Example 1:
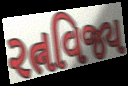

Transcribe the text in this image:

રત્નવિજ્ય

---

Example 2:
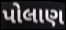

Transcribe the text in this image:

પોલાણ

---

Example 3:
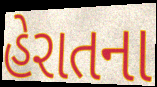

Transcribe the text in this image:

હેરાતના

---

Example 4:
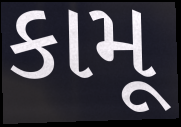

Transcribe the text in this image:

કામૂ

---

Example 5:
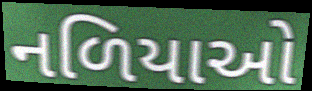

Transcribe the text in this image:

નળિયાઓ